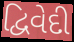
દ્વિવેદી